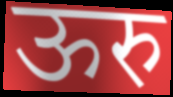
ऊरु